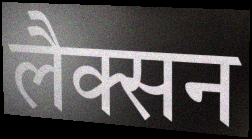
लैक्सन